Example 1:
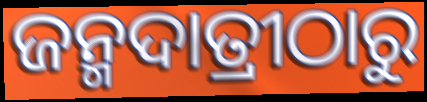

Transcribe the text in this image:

ଜନ୍ମଦାତ୍ରୀଠାରୁ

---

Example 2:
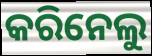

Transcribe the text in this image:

କରିନେଲୁ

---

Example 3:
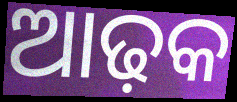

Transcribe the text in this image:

ଆଢ଼କ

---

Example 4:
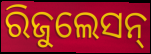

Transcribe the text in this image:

ରିଜୁଲେସନ୍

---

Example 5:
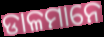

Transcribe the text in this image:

ଡାଳମାନେ